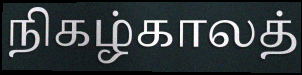
நிகழ்காலத்